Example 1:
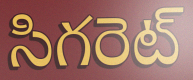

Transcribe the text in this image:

సిగరెట్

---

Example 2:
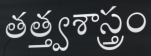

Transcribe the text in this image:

తత్త్వశాస్త్రం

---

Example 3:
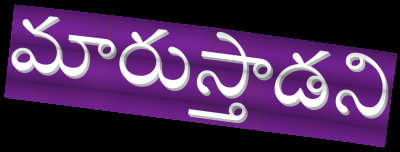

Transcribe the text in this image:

మారుస్తాడని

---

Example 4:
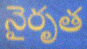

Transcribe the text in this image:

నైరృత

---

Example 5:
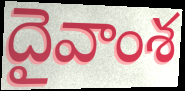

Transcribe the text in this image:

దైవాంశ